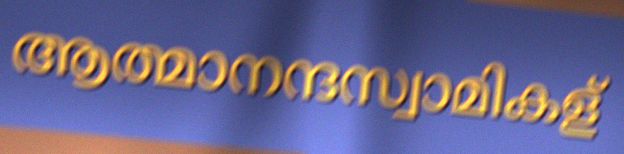
ആത്മാനന്ദസ്വാമികള്